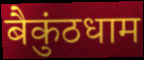
बैकुंठधाम